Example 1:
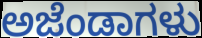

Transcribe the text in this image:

ಅಜೆಂಡಾಗಳು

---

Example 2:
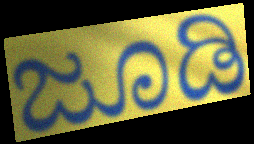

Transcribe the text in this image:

ಜೂಡಿ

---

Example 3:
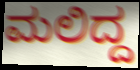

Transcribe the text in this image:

ಮಲಿದ್ದ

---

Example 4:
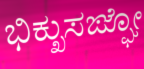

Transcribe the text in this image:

ಭಿಕ್ಖುಸಙ್ಘೋ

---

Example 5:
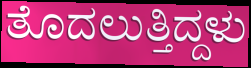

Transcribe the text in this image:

ತೊದಲುತ್ತಿದ್ದಳು